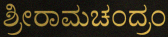
ಶ್ರೀರಾಮಚಂದ್ರಂ